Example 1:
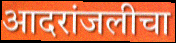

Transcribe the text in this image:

आदरांजलीचा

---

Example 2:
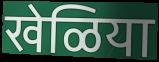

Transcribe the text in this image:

खेळिया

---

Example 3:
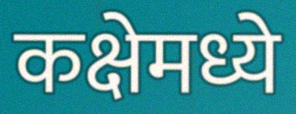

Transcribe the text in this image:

कक्षेमध्ये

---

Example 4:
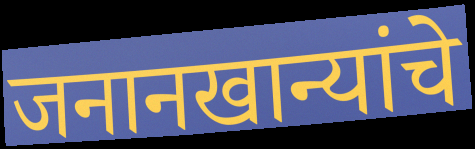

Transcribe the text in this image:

जनानखान्यांचे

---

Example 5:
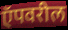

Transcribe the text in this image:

ऍपवरील